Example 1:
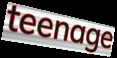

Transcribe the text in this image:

teenage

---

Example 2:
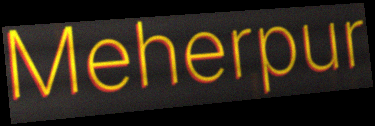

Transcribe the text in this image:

Meherpur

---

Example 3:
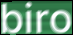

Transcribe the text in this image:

biro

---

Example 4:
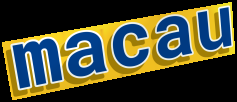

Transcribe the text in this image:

macau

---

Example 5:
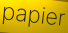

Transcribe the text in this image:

papier